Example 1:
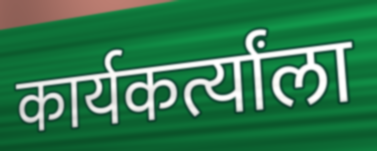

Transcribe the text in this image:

कार्यकर्त्यांला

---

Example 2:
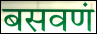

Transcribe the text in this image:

बसवणं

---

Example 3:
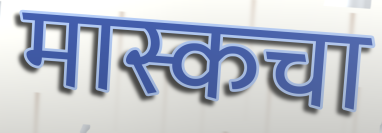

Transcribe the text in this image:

मास्कचा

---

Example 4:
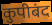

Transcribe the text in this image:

कुपीबंद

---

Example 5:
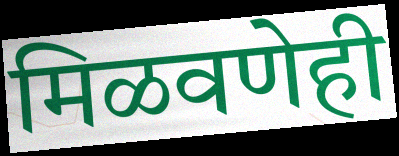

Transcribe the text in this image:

मिळवणेही